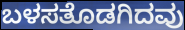
ಬಳಸತೊಡಗಿದವು